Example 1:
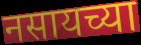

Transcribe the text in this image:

नसायच्या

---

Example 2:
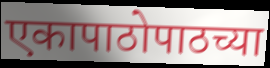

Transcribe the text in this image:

एकापाठोपाठच्या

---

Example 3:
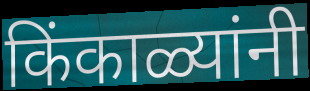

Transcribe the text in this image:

किंकाळ्यांनी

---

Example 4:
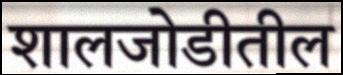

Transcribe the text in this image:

शालजोडीतील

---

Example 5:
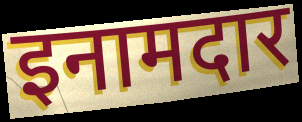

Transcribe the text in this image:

इनामदार